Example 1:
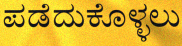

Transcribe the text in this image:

ಪಡೆದುಕೊಳ್ಳಲು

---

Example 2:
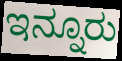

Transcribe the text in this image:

ಇನ್ನೂರು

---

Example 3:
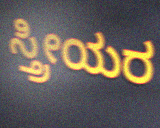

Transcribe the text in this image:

ಸ್ತ್ರೀಯರ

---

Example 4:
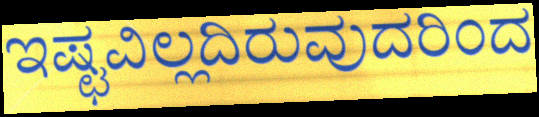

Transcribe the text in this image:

ಇಷ್ಟವಿಲ್ಲದಿರುವುದರಿಂದ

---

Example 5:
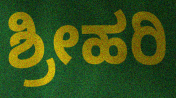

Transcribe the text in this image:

ಶ್ರೀಹರಿ